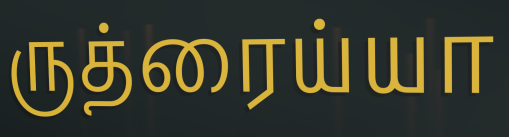
ருத்ரைய்யா